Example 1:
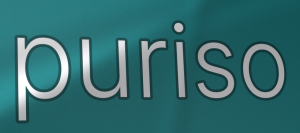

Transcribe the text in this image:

puriso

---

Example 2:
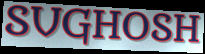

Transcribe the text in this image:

SUGHOSH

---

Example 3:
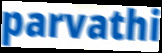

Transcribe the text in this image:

parvathi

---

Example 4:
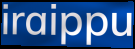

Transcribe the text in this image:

iraippu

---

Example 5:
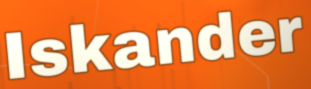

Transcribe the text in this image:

Iskander